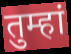
तुम्हां